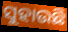
ସୁହାଉଛି